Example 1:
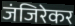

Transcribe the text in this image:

जंजिरेकर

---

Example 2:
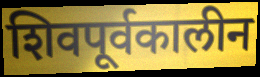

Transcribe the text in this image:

शिवपूर्वकालीन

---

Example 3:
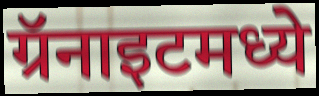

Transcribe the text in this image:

ग्रॅनाइटमध्ये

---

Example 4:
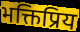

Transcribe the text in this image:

भक्तिप्रिय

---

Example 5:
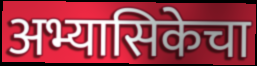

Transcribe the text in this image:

अभ्यासिकेचा